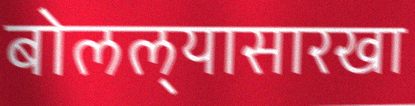
बोलल्यासारखा